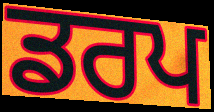
ਡਰਪ